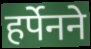
हर्पेनने